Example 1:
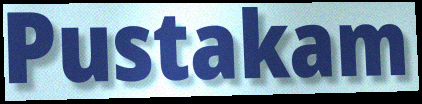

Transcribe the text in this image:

Pustakam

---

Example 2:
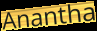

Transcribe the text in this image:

Anantha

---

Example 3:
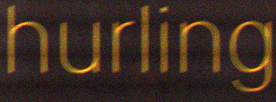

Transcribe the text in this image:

hurling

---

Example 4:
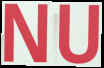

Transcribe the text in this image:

NU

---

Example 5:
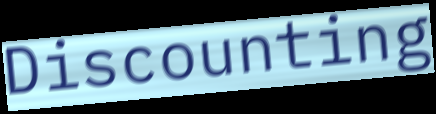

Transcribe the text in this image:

Discounting